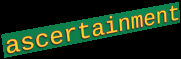
ascertainment